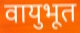
वायुभूत